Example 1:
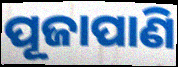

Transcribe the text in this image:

ପୂଜାପାଣି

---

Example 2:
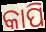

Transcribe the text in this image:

କାପି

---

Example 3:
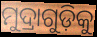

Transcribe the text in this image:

ମୁଦ୍ରାଗୁଡ଼ିକୁ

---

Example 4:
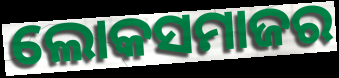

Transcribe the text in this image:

ଲୋକସମାଜର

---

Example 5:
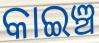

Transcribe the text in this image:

କାଇଞ୍ଚ